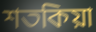
শতকিয়া